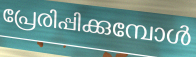
പ്രേരിപ്പിക്കുമ്പോൾ